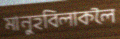
মানুহবিলাকলৈ